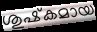
ശുഷ്‌കമായ